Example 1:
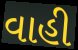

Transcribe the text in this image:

વાહી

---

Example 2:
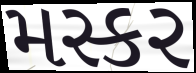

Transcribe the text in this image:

મસ્કર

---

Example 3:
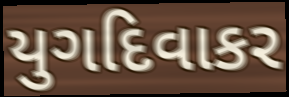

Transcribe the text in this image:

યુગદિવાકર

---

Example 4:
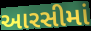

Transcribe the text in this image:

આરસીમાં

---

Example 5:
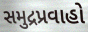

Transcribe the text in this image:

સમુદ્રપ્રવાહો